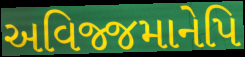
અવિજ્જમાનેપિ